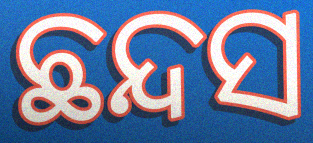
ଛନ୍ଦସ